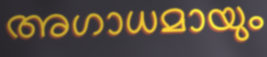
അഗാധമായും